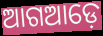
ଆଗଆଡ଼େ